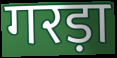
गरड़ा